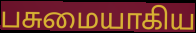
பசுமையாகிய